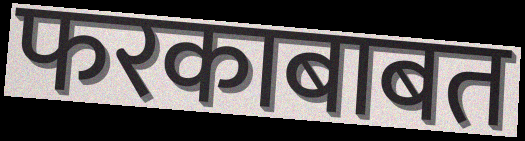
फरकाबाबत